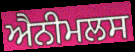
ਐਨੀਮਲਸ